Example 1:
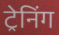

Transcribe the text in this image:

ट्रेनिंग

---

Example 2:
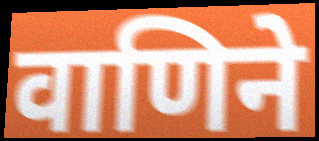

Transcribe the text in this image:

वाणिने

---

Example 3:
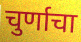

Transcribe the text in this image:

चुर्णाचा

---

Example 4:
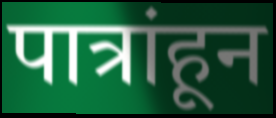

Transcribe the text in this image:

पात्रांहून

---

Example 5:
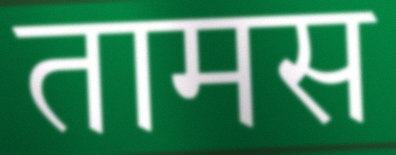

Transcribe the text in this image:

तामस